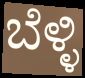
ಬೆಳ್ಳಿ